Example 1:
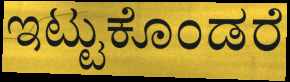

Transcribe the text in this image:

ಇಟ್ಟುಕೊಂಡರೆ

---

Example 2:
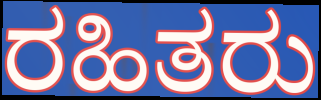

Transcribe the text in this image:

ರಹಿತರು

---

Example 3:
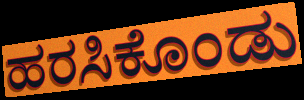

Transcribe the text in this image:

ಹರಸಿಕೊಂಡು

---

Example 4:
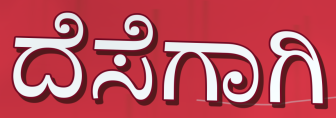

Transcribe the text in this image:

ದೆಸೆಗಾಗಿ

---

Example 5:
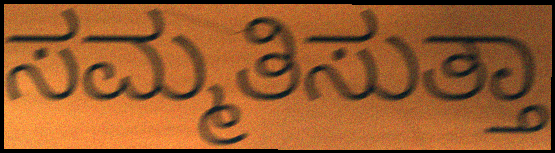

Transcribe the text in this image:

ಸಮ್ಮತಿಸುತ್ತಾ